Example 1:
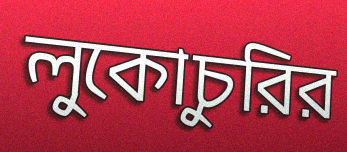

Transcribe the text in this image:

লুকোচুরির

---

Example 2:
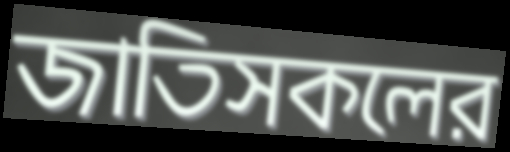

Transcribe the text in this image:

জাতিসকলের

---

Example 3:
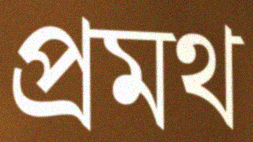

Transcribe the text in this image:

প্রমথ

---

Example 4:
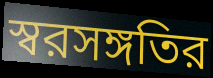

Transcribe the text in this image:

স্বরসঙ্গতির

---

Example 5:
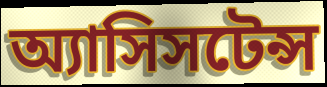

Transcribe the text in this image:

অ্যাসিসটেন্স